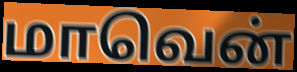
மாவென்